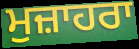
ਮੁਜ਼ਾਹਰਾ